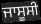
ਜਾਸੂਸੀ